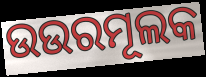
ଉଉରମୂଲକ